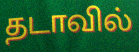
தடாவில்